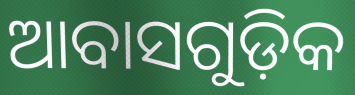
ଆବାସଗୁଡ଼ିକ